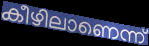
കീഴിലാണെന്ന്